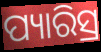
ପ୍ୟାରିସ୍ର